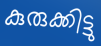
കുരുക്കിട്ടു